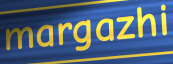
margazhi